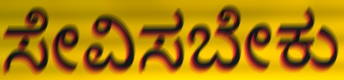
ಸೇವಿಸಬೇಕು